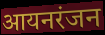
आयनरंजन